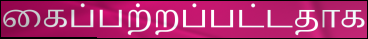
கைப்பற்றப்பட்டதாக